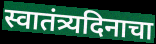
स्वातंत्र्यदिनाचा